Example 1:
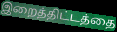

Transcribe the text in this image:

இறைத்திட்டத்தை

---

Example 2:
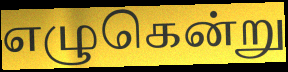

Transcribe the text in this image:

எழுகென்று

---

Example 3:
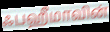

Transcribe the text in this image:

ஃபஹீமாவின்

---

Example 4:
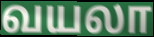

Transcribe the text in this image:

வயலா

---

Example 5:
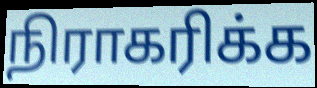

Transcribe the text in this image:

நிராகரிக்க